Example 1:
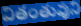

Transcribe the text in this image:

వితంతువుని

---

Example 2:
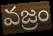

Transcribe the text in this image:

వజ్రం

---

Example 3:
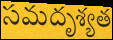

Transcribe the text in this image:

సమదృశ్యత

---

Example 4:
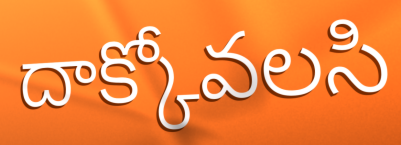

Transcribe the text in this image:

దాక్కోవలసి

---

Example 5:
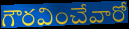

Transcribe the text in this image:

గౌరవించేవారో